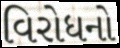
વિરોધનો